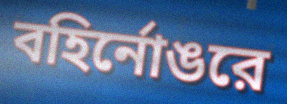
বহির্নোঙরে